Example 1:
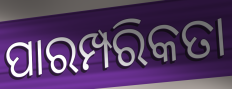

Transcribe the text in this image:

ପାରମ୍ପରିକତା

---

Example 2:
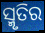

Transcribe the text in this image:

ସ୍ମୃତିର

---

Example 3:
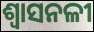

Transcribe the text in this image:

ଶ୍ଵାସନଳୀ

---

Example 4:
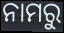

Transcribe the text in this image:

ନାମରୁ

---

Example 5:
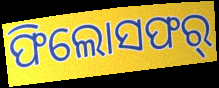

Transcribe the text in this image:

ଫିଲୋସଫର୍